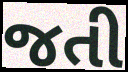
જતી